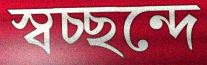
স্বচ্ছন্দে